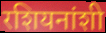
रशियनांशी